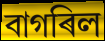
বাগৰিল